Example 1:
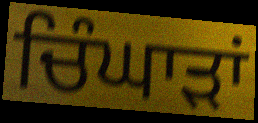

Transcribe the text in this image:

ਚਿੰਘਾੜਾਂ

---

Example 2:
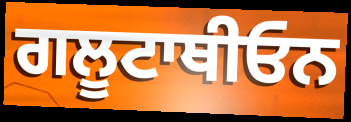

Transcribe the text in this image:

ਗਲੂਟਾਥੀਓਨ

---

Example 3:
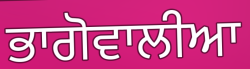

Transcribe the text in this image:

ਭਾਗੋਵਾਲੀਆ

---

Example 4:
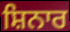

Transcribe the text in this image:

ਸ਼ਿਨਾਰ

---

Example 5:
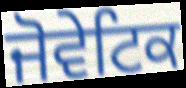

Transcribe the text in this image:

ਜੋਵੇਟਿਕ